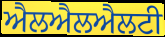
ਐਲਐਲਐਲਟੀ